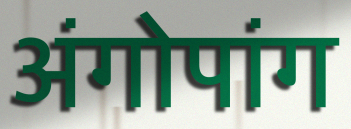
अंगोपांग